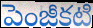
పెంజీకటి